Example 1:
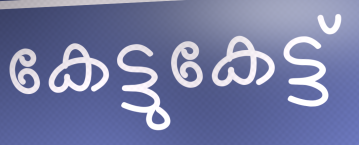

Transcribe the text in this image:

കേട്ടുകേട്ട്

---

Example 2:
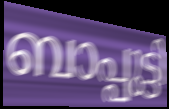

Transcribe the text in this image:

ബാപ്പുട്ടി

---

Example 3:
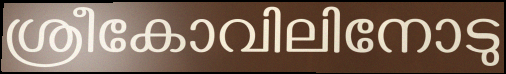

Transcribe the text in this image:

ശ്രീകോവിലിനോടു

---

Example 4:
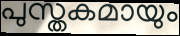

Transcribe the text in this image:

പുസ്തകമായും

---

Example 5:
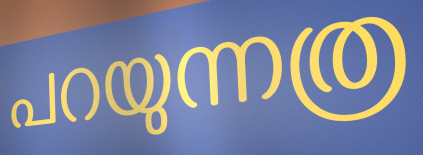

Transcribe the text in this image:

പറയുന്നത്ര